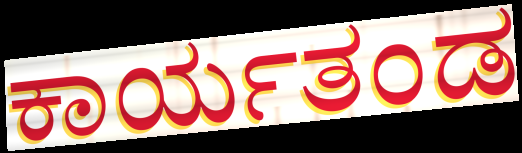
ಕಾರ್ಯತಂಡ